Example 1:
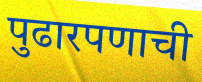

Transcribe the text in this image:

पुढारपणाची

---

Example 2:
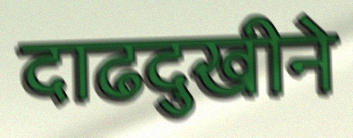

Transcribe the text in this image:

दाढदुखीने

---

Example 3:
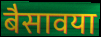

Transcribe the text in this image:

बैसावया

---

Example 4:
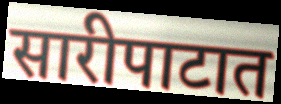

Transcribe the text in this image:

सारीपाटात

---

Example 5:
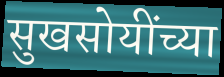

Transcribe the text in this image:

सुखसोयींच्या